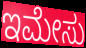
ಇಮೇಸು